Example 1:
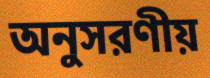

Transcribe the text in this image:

অনুসরণীয়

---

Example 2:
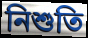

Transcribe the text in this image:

নিশুতি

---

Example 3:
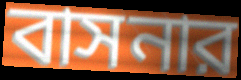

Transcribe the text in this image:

বাসনার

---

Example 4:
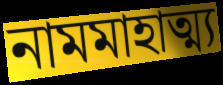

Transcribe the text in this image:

নামমাহাত্ম্য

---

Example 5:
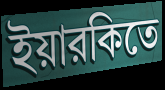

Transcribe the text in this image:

ইয়ারকিতে